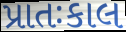
પ્રાતઃકાલ